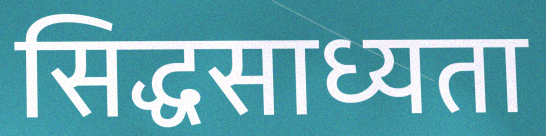
सिद्धसाध्यता